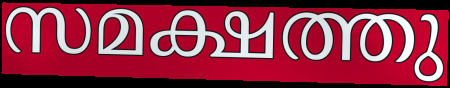
സമക്ഷത്തു